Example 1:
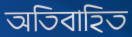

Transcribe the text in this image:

অতিবাহিত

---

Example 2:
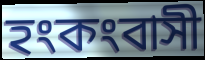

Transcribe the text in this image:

হংকংবাসী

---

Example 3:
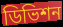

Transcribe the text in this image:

ডিভিশন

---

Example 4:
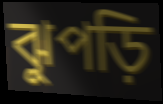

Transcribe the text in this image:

ঝুপড়ি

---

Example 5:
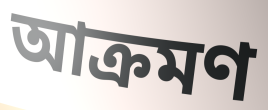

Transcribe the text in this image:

আক্রমণ